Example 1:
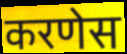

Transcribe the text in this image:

करणेस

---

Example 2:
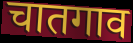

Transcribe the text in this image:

चातगाव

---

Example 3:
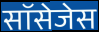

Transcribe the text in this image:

सॉसेजेस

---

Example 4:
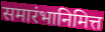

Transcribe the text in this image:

समारंभानिमित्त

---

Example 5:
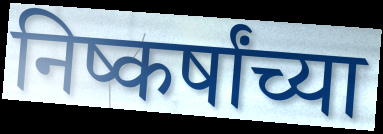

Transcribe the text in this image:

निष्कर्षांच्या